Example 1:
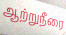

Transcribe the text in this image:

ஆற்றுநீரை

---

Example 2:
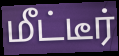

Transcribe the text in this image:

மீட்டீர்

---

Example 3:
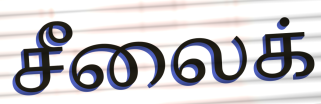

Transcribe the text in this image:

சீலைக்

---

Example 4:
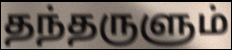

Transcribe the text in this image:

தந்தருளும்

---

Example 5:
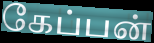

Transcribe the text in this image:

கேப்பன்